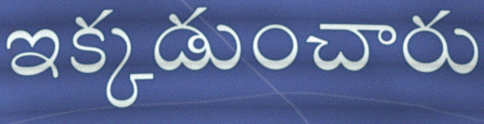
ఇక్కడుంచారు